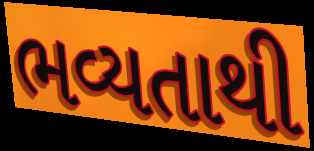
ભવ્યતાથી